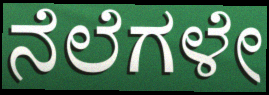
ನೆಲೆಗಳೇ